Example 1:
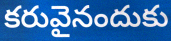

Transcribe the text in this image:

కరువైనందుకు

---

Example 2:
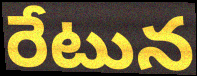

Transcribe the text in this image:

రేటున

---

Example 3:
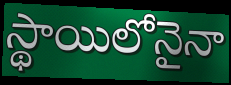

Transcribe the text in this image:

స్థాయిలోనైనా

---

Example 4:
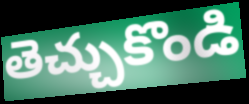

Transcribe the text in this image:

తెచ్చుకొండి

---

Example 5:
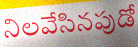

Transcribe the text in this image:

నిలవేసినపుడో